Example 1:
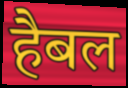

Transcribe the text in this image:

हैबल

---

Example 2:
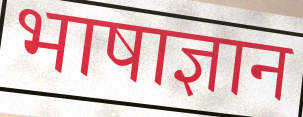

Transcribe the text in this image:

भाषाज्ञान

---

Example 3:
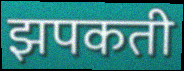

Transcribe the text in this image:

झपकती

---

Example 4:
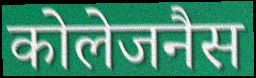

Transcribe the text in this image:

कोलेजनैस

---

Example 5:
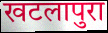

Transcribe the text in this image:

खटलापुरा